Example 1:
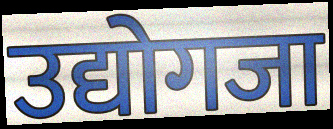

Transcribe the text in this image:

उद्योगजा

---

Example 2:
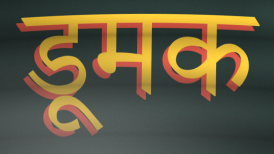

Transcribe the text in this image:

डूमक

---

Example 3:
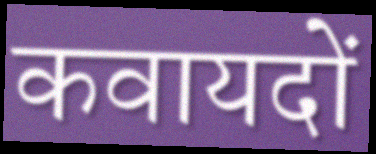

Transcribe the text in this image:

कवायदों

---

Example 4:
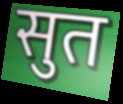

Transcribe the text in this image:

सुत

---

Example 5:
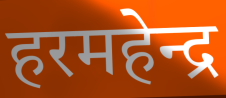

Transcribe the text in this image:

हरमहेन्द्र